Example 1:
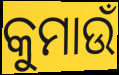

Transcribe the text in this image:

କୁମାଉଁ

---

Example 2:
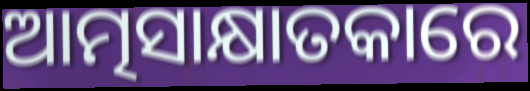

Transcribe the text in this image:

ଆତ୍ମସାକ୍ଷାତକାରେ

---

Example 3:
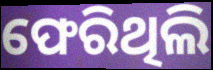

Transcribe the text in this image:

ଫେରିଥିଲି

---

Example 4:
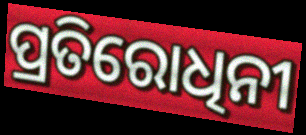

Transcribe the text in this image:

ପ୍ରତିରୋଧିନୀ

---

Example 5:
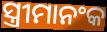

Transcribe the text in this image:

ସ୍ତ୍ରୀମାନଂକ